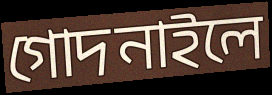
গোদনাইলে